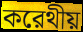
করেথীয়